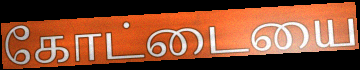
கோட்டையை